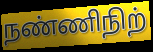
நண்ணிநிற்